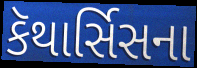
કૅથાર્સિસના